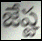
జేష్ట